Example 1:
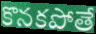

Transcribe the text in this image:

కొనకపోతే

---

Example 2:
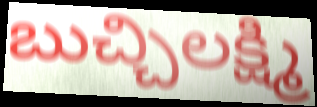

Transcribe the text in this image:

బుచ్చిలక్ష్మి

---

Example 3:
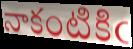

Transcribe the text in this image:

నాకంటికిఁ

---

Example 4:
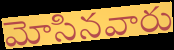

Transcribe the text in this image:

మోసినవారు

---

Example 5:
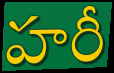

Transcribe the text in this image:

హరీ